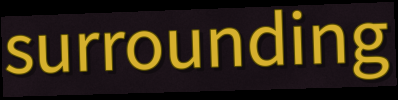
surrounding